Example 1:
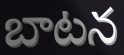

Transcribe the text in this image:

బాటన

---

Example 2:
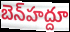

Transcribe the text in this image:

బెన్‍హద్దూ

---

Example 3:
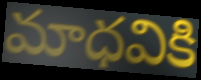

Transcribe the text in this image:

మాధవికి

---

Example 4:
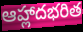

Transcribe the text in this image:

ఆహ్లాదభరిత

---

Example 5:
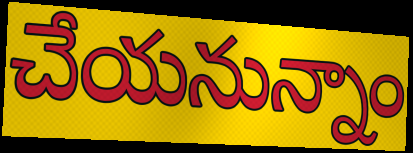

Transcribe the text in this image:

చేయనున్నాం